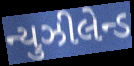
ન્યુઝીલેન્ડ